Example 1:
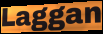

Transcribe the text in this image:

Laggan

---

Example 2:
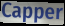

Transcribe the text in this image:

Capper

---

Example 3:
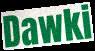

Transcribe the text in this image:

Dawki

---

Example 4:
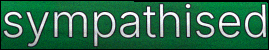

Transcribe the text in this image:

sympathised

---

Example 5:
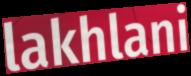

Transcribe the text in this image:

lakhlani